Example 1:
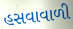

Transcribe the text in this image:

હસવાવાળી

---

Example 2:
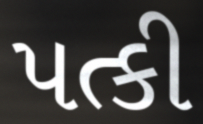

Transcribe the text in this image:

પત્કી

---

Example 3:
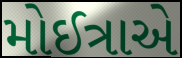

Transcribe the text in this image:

મોઈત્રાએ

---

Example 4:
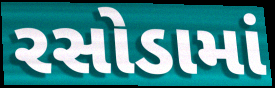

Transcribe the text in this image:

રસોડામાં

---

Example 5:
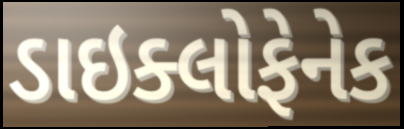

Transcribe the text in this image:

ડાઇક્લોફેનેક